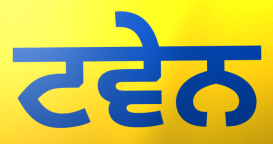
ਟਵੇਨ